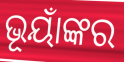
ଭୂୟାଁଙ୍କର